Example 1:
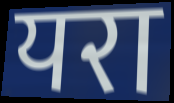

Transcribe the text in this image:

यरा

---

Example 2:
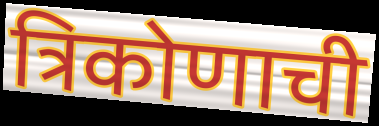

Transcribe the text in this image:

त्रिकोणाची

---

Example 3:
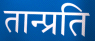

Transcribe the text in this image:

तान्प्रति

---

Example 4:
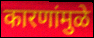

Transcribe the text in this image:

कारणांमुळे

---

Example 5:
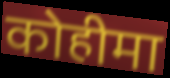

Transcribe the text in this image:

कोहीमा